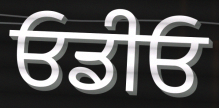
ਓਡੀਓ